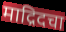
माद्रिदचा